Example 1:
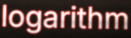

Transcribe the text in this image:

logarithm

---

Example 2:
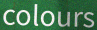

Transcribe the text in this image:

colours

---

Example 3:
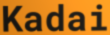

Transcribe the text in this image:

Kadai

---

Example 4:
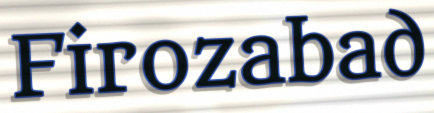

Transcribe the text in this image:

Firozabad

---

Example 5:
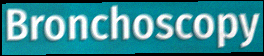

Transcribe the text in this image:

Bronchoscopy